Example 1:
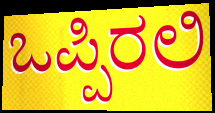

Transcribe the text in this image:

ಒಪ್ಪಿರಲಿ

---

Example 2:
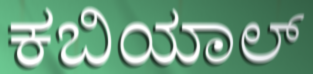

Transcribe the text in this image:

ಕಬಿಯಾಲ್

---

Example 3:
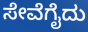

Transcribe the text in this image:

ಸೇವೆಗೈದು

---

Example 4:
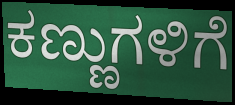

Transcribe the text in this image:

ಕಣ್ಣುಗಳಿಗೆ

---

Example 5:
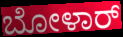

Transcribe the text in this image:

ಬೋಳಾರ್